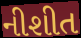
નીશીત